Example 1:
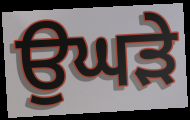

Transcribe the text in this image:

ਉਘੜੇ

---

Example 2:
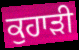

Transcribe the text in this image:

ਕੁਹਾੜੀ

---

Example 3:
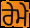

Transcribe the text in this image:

ਰੇਮੇ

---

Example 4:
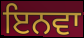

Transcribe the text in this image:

ਇਨਵਾ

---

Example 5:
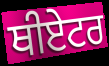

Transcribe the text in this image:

ਥੀਏਟਰ